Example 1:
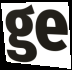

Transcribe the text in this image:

ge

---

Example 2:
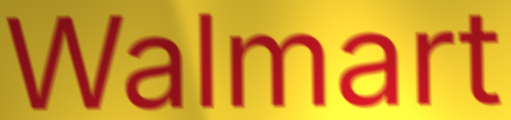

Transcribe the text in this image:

Walmart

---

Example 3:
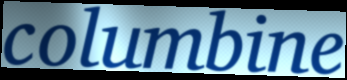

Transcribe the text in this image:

columbine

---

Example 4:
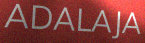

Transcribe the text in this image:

ADALAJA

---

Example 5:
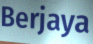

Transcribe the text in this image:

Berjaya